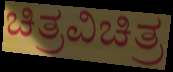
ಚಿತ್ರವಿಚಿತ್ರ